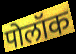
पोलॉक